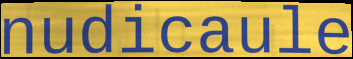
nudicaule